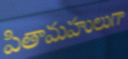
పితామహులుగా